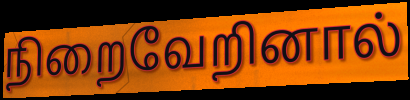
நிறைவேறினால்